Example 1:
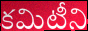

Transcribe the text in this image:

కమిటీని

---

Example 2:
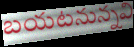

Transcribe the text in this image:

బయటనున్నవి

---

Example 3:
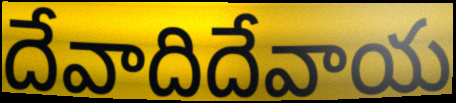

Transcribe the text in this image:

దేవాదిదేవాయ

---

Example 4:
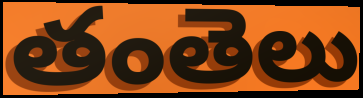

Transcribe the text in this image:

తంతెలు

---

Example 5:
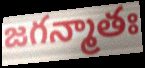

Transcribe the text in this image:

జగన్మాతః